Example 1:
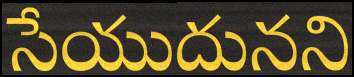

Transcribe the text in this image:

సేయుదునని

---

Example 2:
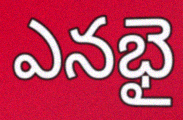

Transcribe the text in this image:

ఎనభై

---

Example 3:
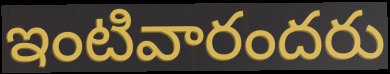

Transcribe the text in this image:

ఇంటివారందరు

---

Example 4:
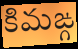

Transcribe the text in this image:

కిమఙ్గ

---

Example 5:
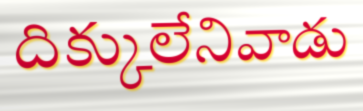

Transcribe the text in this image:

దిక్కులేనివాడు